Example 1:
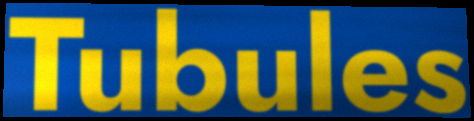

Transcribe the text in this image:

Tubules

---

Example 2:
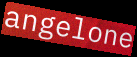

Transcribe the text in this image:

angelone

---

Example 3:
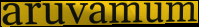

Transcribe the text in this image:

aruvamum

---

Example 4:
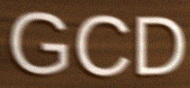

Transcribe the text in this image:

GCD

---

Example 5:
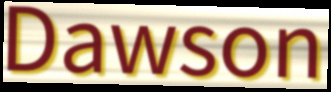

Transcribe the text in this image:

Dawson